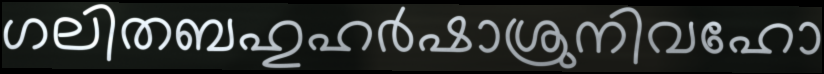
ഗലിതബഹുഹർഷാശ്രുനിവഹോ